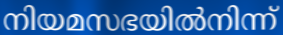
നിയമസഭയിൽനിന്ന്